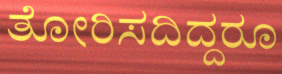
ತೋರಿಸದಿದ್ದರೂ